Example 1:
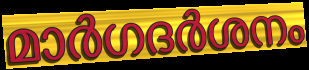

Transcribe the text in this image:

മാർഗദർശനം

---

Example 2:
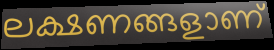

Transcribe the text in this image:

ലക്ഷണങ്ങളാണ്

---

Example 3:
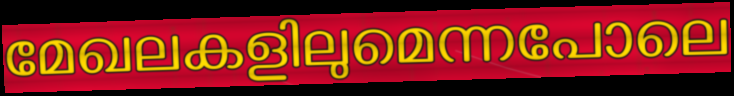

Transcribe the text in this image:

മേഖലകളിലുമെന്നപോലെ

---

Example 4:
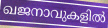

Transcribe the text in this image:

ഖജനാവുകളിൽ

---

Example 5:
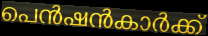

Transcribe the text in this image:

പെൻഷൻകാർക്ക്